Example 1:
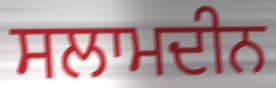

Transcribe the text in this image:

ਸਲਾਮਦੀਨ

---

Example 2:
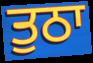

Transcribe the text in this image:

ਤੁਠਾ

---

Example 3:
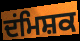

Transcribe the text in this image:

ਦਂਮਿਸ਼ਕ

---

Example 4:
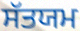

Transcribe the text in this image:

ਸੱਤਯਮ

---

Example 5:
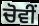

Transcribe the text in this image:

ਚੋਵੀਂ